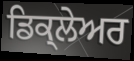
ਡਿਕ੍ਲੇਅਰ